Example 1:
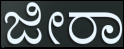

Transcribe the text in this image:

ಜೀರಾ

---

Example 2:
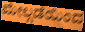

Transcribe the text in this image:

ಮೇಲ್ಗಡೆಯಿಂದ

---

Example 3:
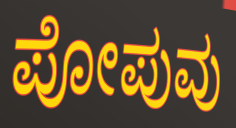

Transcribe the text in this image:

ಪೋಪುವು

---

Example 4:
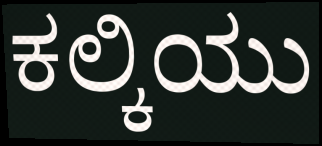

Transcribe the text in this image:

ಕಲ್ಕಿಯು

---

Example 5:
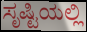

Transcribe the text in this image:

ಸೃಷ್ಟಿಯಲ್ಲಿ